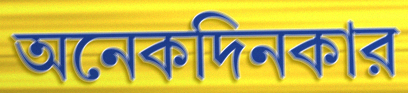
অনেকদিনকার